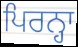
ਪਿਰਨ੍ਹਾ